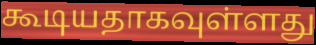
கூடியதாகவுள்ளது